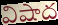
విషాద